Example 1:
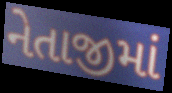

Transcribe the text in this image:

નેતાજીમાં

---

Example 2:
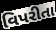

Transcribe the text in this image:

વિપરીતા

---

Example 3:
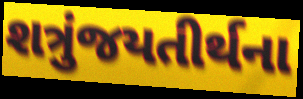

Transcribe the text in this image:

શત્રુંજયતીર્થના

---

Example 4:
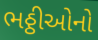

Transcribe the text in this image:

ભઠ્ઠીઓનો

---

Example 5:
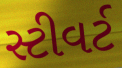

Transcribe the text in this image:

સ્ટીવર્ટ